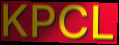
KPCL